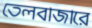
তেলবাজারে